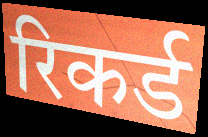
रिकर्ड